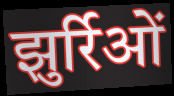
झुर्रिओं